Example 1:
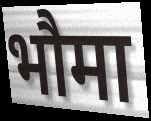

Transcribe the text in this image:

भौमा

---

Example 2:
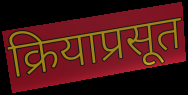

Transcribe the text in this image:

क्रियाप्रसूत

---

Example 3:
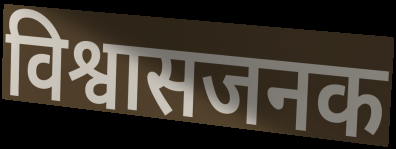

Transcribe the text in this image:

विश्वासजनक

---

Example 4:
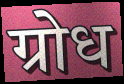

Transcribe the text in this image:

ग्रोध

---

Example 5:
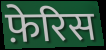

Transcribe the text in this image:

फ़ेरिस